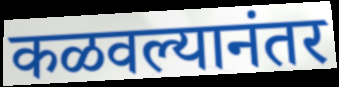
कळवल्यानंतर